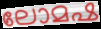
ലോമഷ